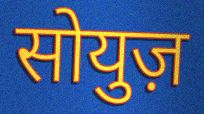
सोयुज़